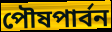
পৌষপার্বন